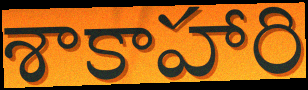
శాకాహారి